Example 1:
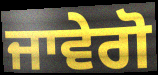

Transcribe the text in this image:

ਜਾਵੇਗੋ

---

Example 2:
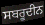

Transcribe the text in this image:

ਸਬਰੂਦੀਨ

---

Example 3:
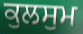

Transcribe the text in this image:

ਕੁਲਸੁਮ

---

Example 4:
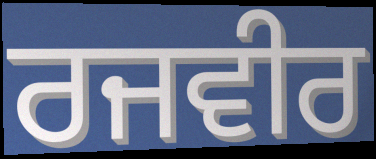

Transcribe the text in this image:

ਰਜਵੀਰ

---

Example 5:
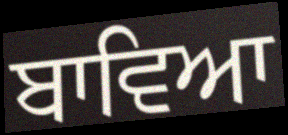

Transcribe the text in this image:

ਬਾਵਿਆ